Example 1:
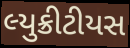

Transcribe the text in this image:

લ્યુક્રીટીયસ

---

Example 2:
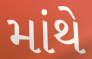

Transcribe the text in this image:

માંથે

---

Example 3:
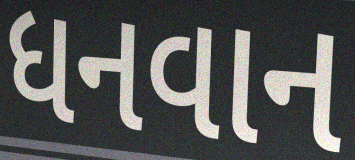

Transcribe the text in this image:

ધનવાન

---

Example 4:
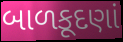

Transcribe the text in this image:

બાળકૂદણાં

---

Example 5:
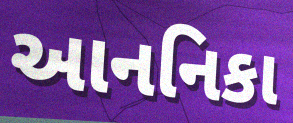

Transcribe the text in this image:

આનનિકા